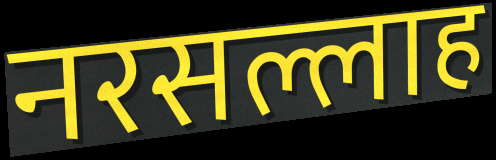
नरसल्लाह